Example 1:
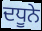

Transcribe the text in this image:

ਦਧੂਨੇ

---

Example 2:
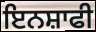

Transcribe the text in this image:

ਇਨਸ਼ਾਫੀ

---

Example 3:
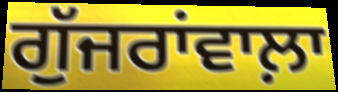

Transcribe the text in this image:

ਗੁੱਜਰਾਂਵਾਲ਼ਾ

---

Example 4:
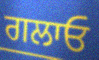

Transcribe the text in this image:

ਗਲਾਓ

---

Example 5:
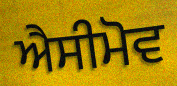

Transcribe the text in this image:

ਐਸੀਮੋਵ